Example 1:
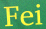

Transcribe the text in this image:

Fei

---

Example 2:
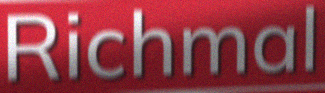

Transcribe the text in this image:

Richmal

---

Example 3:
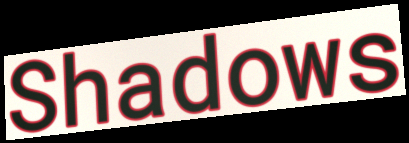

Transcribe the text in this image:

Shadows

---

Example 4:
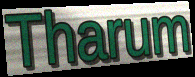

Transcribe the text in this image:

Tharum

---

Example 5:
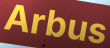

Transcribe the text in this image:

Arbus